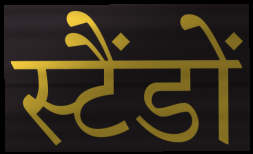
स्टैंडों